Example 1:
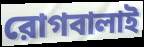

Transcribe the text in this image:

রোগবালাই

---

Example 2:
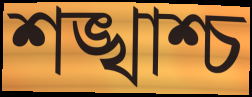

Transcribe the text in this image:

শঙ্খাশ্চ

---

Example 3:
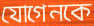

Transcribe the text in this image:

যোগেনকে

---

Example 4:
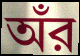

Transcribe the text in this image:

অঁর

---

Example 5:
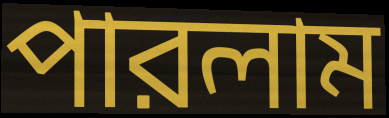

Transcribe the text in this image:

পারলাম